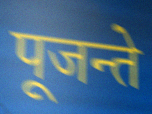
पूजन्ते